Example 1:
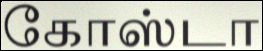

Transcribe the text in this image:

கோஸ்டா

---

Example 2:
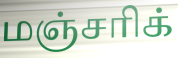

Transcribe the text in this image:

மஞ்சரிக்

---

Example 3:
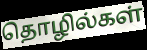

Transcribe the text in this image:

தொழில்கள்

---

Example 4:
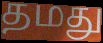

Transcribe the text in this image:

தமது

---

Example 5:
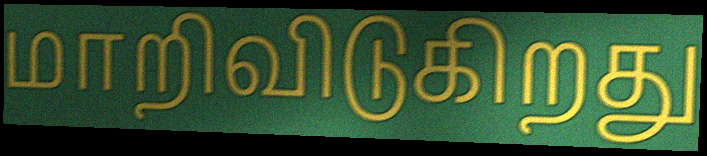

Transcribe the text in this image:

மாறிவிடுகிறது